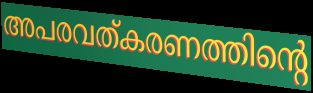
അപരവത്കരണത്തിന്റെ